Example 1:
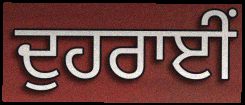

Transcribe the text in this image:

ਦੁਹਰਾਈਂ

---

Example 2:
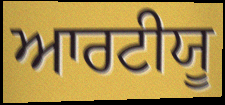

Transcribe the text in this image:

ਆਰਟੀਯੂ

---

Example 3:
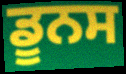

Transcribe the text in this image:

ਡੂਨਸ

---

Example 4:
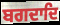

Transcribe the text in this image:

ਬਗਦਾਦਿ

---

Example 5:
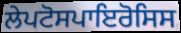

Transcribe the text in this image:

ਲੇਪਟੋਸਪਾਇਰੋਸਿਸ